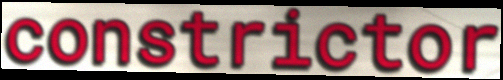
constrictor